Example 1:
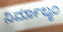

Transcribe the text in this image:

ನಿರ್ಮಾಲ್ಯಂ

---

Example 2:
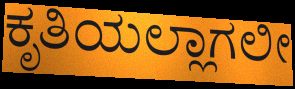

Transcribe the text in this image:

ಕೃತಿಯಲ್ಲಾಗಲೀ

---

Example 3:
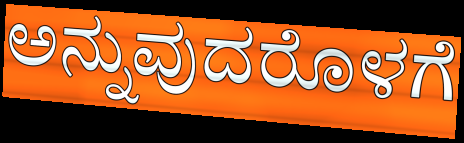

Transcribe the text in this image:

ಅನ್ನುವುದರೊಳಗೆ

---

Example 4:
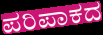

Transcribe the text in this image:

ಪರಿಪಾಕದ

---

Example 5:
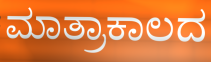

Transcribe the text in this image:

ಮಾತ್ರಾಕಾಲದ